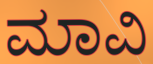
ಮಾವಿ